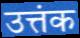
उत्तंक